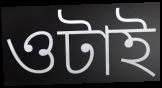
ওটাই